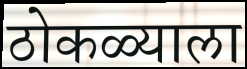
ठोकळ्याला